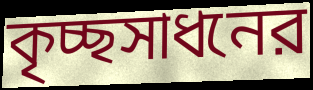
কৃচ্ছসাধনের